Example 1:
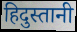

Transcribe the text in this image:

हिदुस्तानी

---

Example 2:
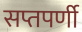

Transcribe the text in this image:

सप्तपर्णी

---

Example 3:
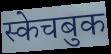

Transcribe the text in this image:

स्केचबुक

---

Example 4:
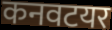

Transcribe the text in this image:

कनवटयर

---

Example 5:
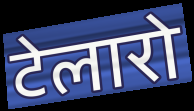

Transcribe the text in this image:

टेलारो